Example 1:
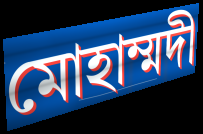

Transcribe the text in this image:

মোহাম্মদী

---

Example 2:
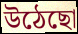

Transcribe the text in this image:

উঠেছো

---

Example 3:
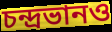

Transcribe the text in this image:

চন্দ্রভানও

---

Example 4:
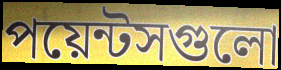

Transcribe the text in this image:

পয়েন্টসগুলো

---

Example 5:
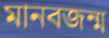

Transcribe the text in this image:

মানবজন্ম